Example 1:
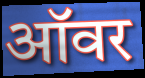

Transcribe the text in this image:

ऑवर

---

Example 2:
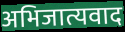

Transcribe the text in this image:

अभिजात्यवाद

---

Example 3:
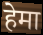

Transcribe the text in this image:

हेमा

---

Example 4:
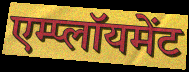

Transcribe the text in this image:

एम्प्लॉयमेंट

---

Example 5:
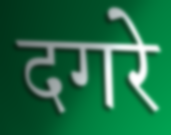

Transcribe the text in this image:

दगरे